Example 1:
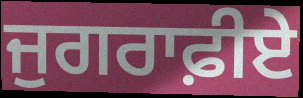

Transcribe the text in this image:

ਜੁਗਰਾਫ਼ੀਏ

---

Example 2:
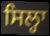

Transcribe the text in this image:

ਸਿਲ੍ਹਾ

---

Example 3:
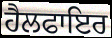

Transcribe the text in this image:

ਹੈਲਫਾਇਰ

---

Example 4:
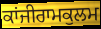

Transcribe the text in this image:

ਕਾਂਜੀਰਾਮਕੁਲਮ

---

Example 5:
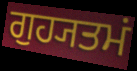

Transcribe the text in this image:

ਗੁਹ੍ਯਤਮਂ